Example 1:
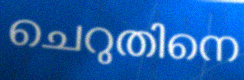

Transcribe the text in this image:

ചെറുതിനെ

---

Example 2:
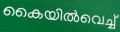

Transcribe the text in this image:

കൈയിൽവെച്ച്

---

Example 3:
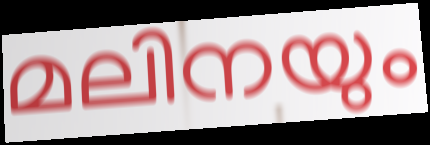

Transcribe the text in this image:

മലിനയും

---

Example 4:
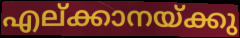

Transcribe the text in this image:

എല്ക്കാനയ്ക്കു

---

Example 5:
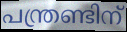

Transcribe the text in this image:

പന്ത്രണ്ടിന്